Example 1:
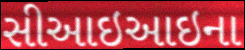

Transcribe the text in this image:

સીઆઇઆઇના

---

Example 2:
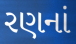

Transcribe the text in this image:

રણનાં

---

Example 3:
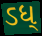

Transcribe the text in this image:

ઽધ્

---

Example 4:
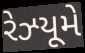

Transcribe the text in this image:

રેઝ્યૂમે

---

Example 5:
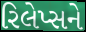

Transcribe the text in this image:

રિલેપ્સને